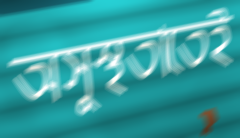
অসুস্থতাতেই